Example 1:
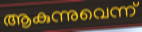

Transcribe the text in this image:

ആകുന്നുവെന്ന്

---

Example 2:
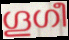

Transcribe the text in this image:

ഗൂഗീ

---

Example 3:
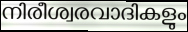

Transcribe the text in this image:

നിരീശ്വരവാദികളും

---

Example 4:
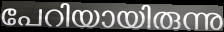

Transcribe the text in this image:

പേറിയായിരുന്നു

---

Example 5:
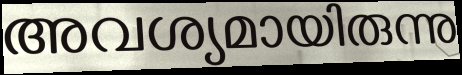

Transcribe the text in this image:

അവശ്യമായിരുന്നു